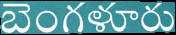
బెంగళూరు